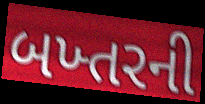
બખ્તરની